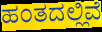
ಹಂತದಲ್ಲಿವೆ